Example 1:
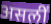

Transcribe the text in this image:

असलीं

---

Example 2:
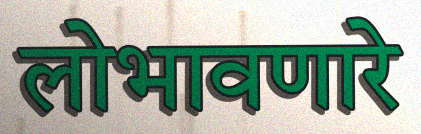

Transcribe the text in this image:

लोभावणारे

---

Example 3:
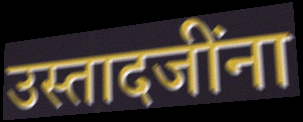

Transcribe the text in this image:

उस्तादजींना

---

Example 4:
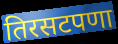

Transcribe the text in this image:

तिरसटपणा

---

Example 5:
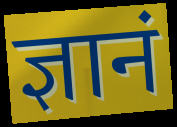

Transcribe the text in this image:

ज्ञानं